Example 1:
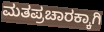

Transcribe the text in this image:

ಮತಪ್ರಚಾರಕ್ಕಾಗಿ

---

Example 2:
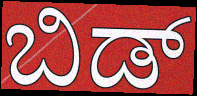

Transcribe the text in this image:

ಬಿಡ್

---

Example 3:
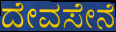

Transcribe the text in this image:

ದೇವಸೇನೆ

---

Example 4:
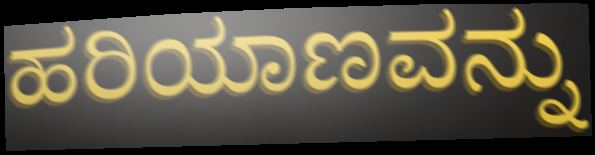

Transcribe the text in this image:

ಹರಿಯಾಣವನ್ನು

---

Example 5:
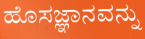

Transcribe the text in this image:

ಹೊಸಜ್ಞಾನವನ್ನು